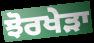
ਝੋਰਖੇੜਾ